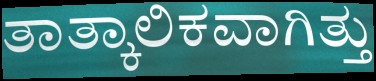
ತಾತ್ಕಾಲಿಕವಾಗಿತ್ತು